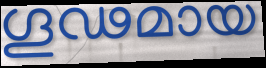
ഗൂഢമായ